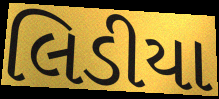
લિડીયા